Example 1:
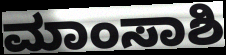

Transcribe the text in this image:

ಮಾಂಸಾಶಿ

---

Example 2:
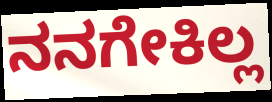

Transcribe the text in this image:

ನನಗೇಕಿಲ್ಲ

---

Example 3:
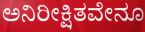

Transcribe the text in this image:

ಅನಿರೀಕ್ಷಿತವೇನೂ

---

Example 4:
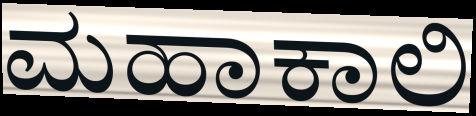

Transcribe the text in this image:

ಮಹಾಕಾಲಿ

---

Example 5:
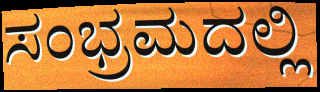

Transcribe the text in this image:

ಸಂಭ್ರಮದಲ್ಲಿ